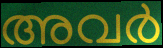
അവർ